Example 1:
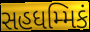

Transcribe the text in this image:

સહધમ્મિકં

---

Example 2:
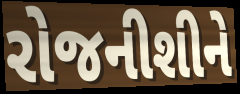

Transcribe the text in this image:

રોજનીશીને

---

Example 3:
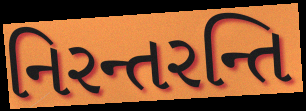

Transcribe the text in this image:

નિરન્તરન્તિ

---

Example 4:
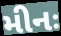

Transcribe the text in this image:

મીનઃ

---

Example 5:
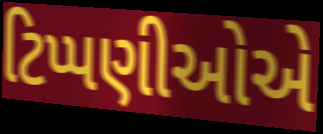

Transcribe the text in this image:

ટિપ્પણીઓએ